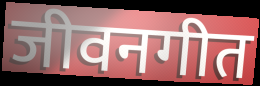
जीवनगीत